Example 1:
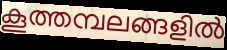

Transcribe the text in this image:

കൂത്തമ്പലങ്ങളിൽ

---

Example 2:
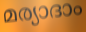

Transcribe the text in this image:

മര്യാദാം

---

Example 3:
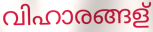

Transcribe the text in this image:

വിഹാരങ്ങള്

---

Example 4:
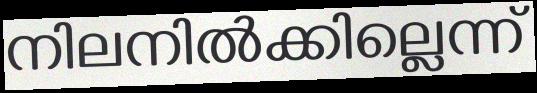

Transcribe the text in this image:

നിലനിൽക്കില്ലെന്ന്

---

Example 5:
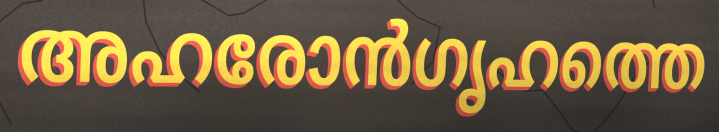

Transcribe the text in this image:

അഹരോൻഗൃഹത്തെ